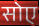
सोए